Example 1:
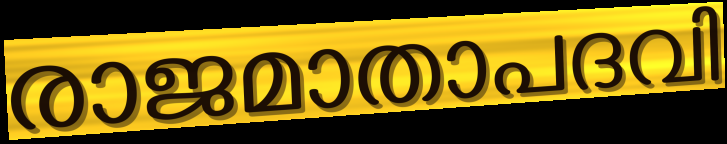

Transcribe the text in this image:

രാജമാതാപദവി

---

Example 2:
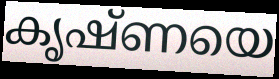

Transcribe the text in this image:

കൃഷ്ണയെ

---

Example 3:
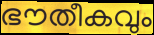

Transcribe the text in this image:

ഭൗതീകവും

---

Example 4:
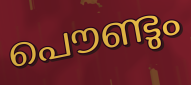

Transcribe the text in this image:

പൌണ്ടും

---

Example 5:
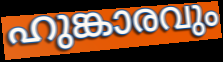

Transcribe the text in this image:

ഹുങ്കാരവും